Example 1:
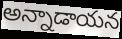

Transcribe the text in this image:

అన్నాడాయన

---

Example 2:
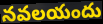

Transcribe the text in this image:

నవలయందు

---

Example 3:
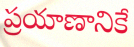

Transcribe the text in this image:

ప్రయాణానికే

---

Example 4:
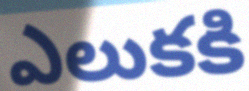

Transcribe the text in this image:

ఎలుకకి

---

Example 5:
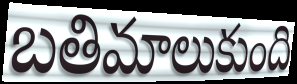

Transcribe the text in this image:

బతిమాలుకుంది